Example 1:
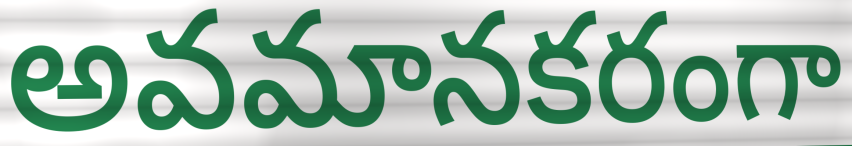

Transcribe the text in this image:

అవమానకరంగా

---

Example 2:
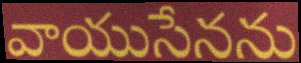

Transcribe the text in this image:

వాయుసేనను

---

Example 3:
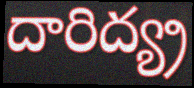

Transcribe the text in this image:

దారిద్య్ర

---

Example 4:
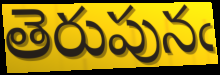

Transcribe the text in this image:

తెరుపునఁ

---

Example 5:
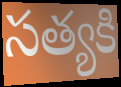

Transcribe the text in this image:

సత్యకి